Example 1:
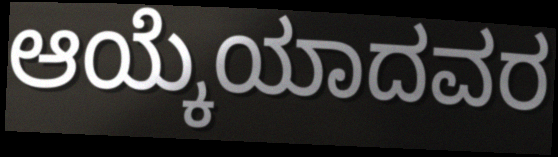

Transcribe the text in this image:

ಆಯ್ಕೆಯಾದವರ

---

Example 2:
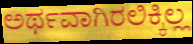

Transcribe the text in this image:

ಅರ್ಥವಾಗಿರಲಿಕ್ಕಿಲ್ಲ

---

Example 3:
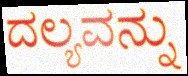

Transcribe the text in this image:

ದಲ್ಯವನ್ನು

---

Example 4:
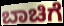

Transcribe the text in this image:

ಬಾಚಿಗೆ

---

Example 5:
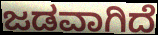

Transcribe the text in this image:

ಜಡವಾಗಿದೆ